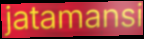
jatamansi